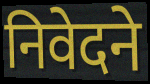
निवेदने